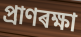
প্ৰাণৰক্ষা